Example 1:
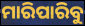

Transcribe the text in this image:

ମାରିପାରିବୁ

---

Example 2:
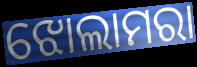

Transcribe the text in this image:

ଝୋଲାମରା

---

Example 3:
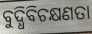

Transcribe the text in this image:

ବୁଦ୍ଧିବିଚକ୍ଷଣତା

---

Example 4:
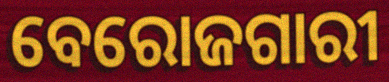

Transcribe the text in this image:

ବେରୋଜଗାରୀ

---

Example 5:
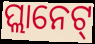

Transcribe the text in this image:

ପ୍ଲାନେଟ୍